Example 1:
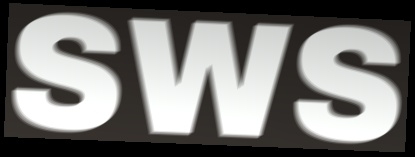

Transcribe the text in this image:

SWS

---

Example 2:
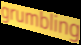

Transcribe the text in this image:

grumbling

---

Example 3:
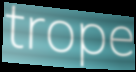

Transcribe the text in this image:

trope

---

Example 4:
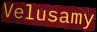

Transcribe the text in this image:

Velusamy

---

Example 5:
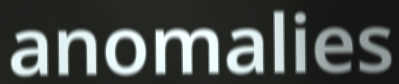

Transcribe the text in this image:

anomalies